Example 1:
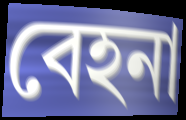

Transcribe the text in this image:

বেহনা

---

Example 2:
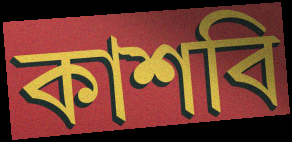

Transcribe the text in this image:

কাশবি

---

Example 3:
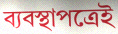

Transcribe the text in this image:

ব্যবস্থাপত্রেই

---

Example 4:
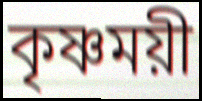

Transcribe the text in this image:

কৃষ্ণময়ী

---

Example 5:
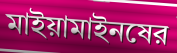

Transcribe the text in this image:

মাইয়ামাইনষের